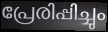
പ്രേരിപ്പിച്ചും